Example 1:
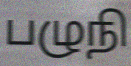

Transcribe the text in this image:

பழுநி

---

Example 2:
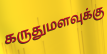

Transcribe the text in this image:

கருதுமளவுக்கு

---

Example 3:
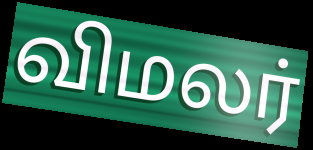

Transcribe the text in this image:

விமலர்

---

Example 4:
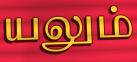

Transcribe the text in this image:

யலும்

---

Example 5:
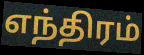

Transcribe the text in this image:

எந்திரம்